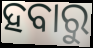
ହବାରୁ